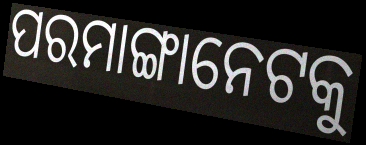
ପରମାଙ୍ଗାନେଟକୁ